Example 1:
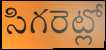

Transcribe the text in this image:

సిగరెట్లో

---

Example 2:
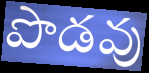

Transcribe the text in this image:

పొడవు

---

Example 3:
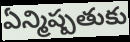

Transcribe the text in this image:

ఏన్మిష్పతుకు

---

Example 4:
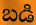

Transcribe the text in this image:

బడి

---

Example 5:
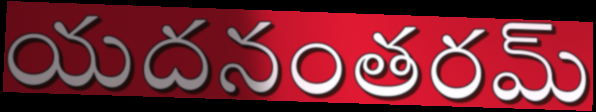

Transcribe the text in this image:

యదనంతరమ్